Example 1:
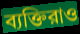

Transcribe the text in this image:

ব্যক্তিরাও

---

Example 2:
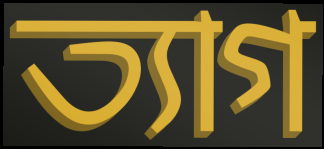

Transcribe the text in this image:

ত্যাগ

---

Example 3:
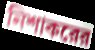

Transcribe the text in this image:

নিশাকরের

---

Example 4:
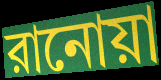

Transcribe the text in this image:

রানোয়া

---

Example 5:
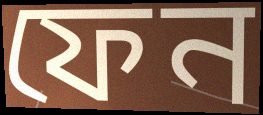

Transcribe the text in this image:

ফেন